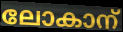
ലോകാന്